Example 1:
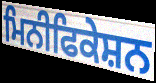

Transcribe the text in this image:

ਮਿਨੀਫਿਕੇਸ਼ਨ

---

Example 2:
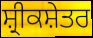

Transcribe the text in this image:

ਸ਼੍ਰੀਕਸ਼ੇਤਰ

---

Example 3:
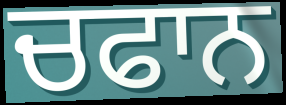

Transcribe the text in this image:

ਚਫਾਨ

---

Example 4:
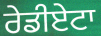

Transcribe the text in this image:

ਰੇਡੀਏਟਾ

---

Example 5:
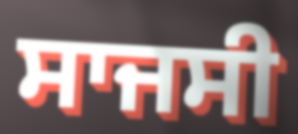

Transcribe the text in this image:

ਸਾਜਸੀ